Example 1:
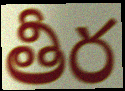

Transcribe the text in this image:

తీర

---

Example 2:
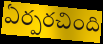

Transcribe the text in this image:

ఏర్పరచింది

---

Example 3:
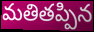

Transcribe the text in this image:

మతితప్పిన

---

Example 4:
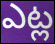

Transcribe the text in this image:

ఎట్ల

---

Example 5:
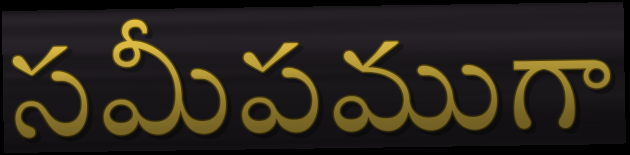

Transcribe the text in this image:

సమీపముగా